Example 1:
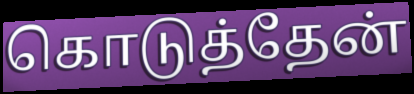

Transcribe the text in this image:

கொடுத்தேன்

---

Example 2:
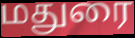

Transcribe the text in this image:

மதுரை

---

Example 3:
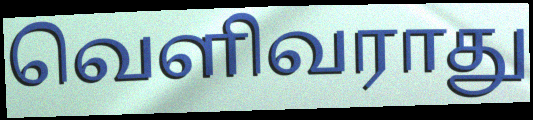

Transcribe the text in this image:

வெளிவராது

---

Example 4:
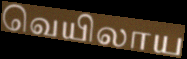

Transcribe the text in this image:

வெயிலாய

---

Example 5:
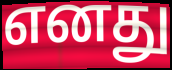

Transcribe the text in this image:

எனது